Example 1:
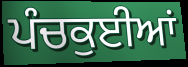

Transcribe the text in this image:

ਪੰਚਕੁਈਆਂ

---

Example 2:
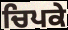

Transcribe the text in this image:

ਚਿਪਕੇ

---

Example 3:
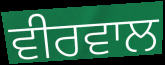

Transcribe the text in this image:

ਵੀਰਵਾਲ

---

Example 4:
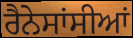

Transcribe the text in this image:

ਰੈਨੇਸਾਂਸੀਆਂ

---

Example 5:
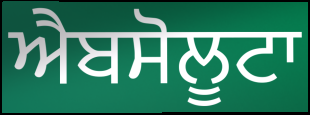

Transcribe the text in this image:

ਐਬਸੋਲੂਟਾ